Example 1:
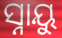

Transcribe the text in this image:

ସ୍ନାୟୁ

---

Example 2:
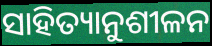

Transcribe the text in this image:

ସାହିତ୍ୟାନୁଶୀଳନ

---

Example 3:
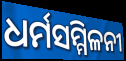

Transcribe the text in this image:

ଧର୍ମସମ୍ମିଳନୀ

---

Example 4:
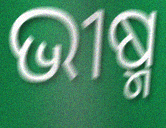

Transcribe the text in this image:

ଭୀଷ୍ମ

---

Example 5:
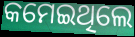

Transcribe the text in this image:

କମେଇଥିଲେ